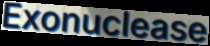
Exonuclease